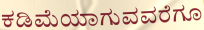
ಕಡಿಮೆಯಾಗುವವರೆಗೂ